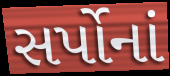
સર્પોનાં